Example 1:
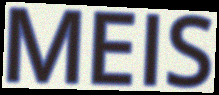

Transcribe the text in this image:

MEIS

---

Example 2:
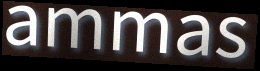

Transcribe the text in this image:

ammas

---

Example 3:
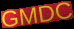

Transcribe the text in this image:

GMDC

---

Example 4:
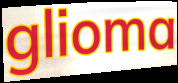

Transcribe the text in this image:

glioma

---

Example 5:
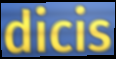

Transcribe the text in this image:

dicis